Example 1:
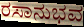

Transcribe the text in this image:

ರಸಾನುಭವ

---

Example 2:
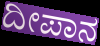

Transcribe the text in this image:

ದೀಪಾನ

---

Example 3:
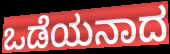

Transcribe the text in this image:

ಒಡೆಯನಾದ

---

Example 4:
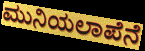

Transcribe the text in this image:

ಮುನಿಯಲಾಪೆನೆ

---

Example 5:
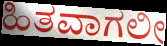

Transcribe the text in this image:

ಹಿತವಾಗಲೀ